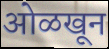
ओळखून